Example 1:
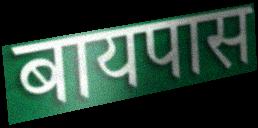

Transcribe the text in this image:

बायपास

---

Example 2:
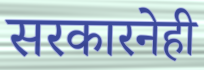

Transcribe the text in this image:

सरकारनेही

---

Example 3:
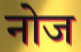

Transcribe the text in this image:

नोज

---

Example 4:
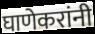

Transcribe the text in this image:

घाणेकरांनी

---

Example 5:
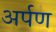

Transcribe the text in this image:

अर्पण